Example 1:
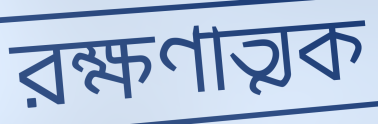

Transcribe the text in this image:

রক্ষণাত্মক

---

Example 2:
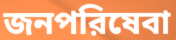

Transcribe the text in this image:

জনপরিষেবা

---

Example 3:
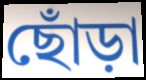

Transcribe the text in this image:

ছোঁড়া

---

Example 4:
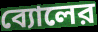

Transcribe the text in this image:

ব্যোলের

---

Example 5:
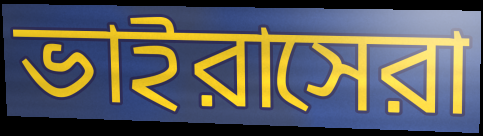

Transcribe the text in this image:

ভাইরাসেরা